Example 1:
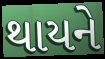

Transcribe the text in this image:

થાયને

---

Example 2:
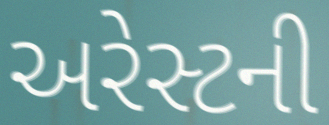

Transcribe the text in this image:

અરેસ્ટની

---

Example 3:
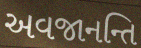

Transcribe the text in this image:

અવજાનન્તિ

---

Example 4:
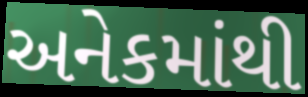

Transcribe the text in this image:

અનેકમાંથી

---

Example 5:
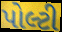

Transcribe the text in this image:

પોલ્ટી